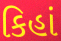
કિહાં